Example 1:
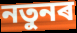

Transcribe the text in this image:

নতুনৰ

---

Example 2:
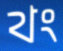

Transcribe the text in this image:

থং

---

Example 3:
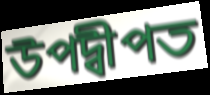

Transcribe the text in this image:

উপদ্বীপত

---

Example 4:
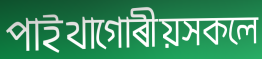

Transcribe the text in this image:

পাইথাগোৰীয়সকলে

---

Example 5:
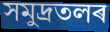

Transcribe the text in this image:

সমুদ্ৰতলৰ